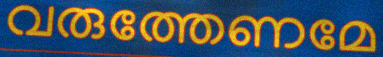
വരുത്തേണമേ